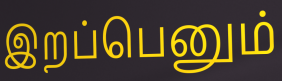
இறப்பெனும்